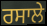
ਰਸਾਲੇ